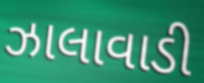
ઝાલાવાડી